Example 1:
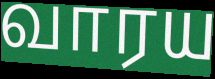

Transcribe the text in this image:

வாரய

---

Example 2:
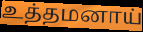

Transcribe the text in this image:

உத்தமனாய்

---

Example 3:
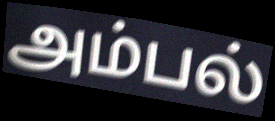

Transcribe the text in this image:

அம்பல்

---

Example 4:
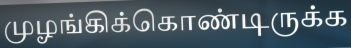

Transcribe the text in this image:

முழங்கிக்கொண்டிருக்க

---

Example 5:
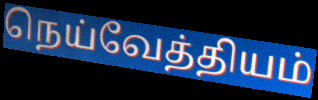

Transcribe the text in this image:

நெய்வேத்தியம்